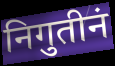
निगुतीनं